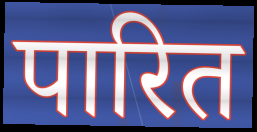
पारित